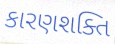
કારણશક્તિ